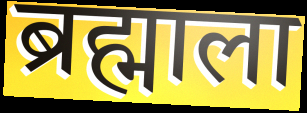
ब्रह्माला